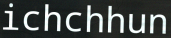
ichchhun